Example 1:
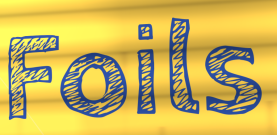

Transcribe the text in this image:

Foils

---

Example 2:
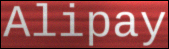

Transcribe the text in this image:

Alipay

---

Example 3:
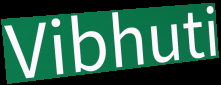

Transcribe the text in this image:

Vibhuti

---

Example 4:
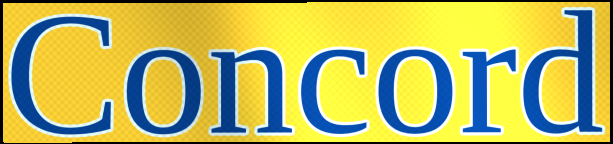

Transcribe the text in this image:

Concord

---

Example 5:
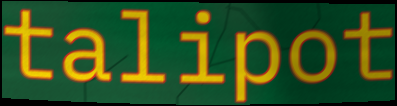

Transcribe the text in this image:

talipot